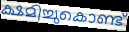
ക്ഷമിച്ചുകൊണ്ട്